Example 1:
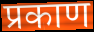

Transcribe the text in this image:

प्रकाण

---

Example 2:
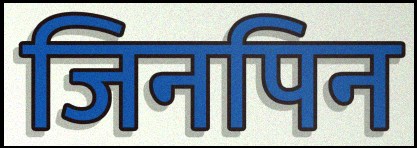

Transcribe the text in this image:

जिनपिन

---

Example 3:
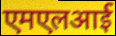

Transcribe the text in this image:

एमएलआई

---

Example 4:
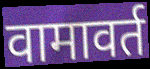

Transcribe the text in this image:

वामावर्त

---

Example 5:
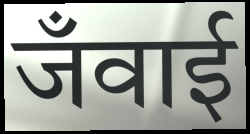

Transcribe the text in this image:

जँवाई